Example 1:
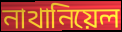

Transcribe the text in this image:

নাথানিয়েল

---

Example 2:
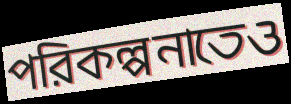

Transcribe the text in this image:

পরিকল্পনাতেও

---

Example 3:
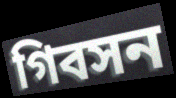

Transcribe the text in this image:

গিবসন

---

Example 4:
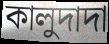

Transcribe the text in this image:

কালুদাদা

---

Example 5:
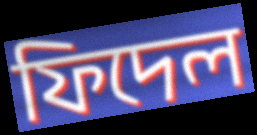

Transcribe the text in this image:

ফিদেল